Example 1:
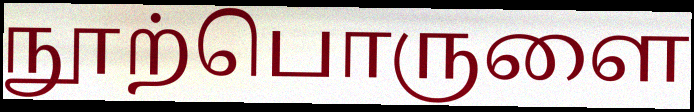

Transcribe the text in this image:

நூற்பொருளை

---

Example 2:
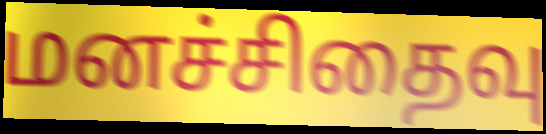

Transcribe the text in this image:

மனச்சிதைவு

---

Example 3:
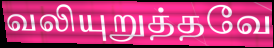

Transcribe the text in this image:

வலியுறுத்தவே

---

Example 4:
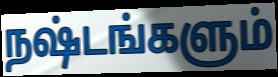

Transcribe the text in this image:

நஷ்டங்களும்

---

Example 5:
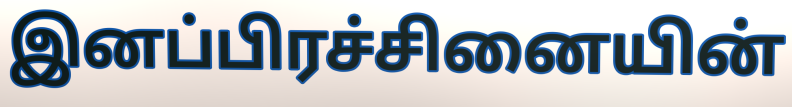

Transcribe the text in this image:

இனப்பிரச்சினையின்